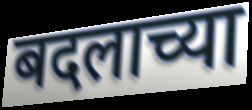
बदलाच्या